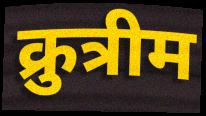
क्रुत्रीम